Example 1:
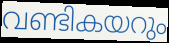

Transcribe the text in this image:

വണ്ടികയറും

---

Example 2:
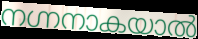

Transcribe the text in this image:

നഗ്നനാകയാൽ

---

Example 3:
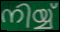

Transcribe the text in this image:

നിയ്യ്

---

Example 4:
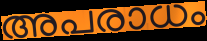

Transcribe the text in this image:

അപരാധം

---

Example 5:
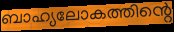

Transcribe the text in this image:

ബാഹ്യലോകത്തിന്റെ